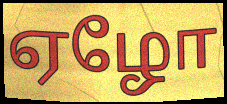
ஏழோ